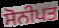
ਸੋਨੀਪਤ